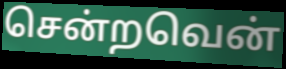
சென்றவென்